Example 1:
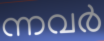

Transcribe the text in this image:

ന്നവർ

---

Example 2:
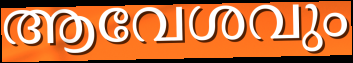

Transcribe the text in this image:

ആവേശവും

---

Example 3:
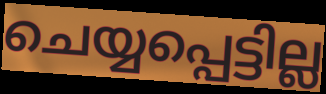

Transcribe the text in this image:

ചെയ്യപ്പെട്ടില്ല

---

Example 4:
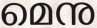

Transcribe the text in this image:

മെനു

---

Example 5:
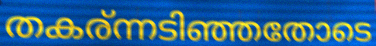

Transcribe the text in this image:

തകര്ന്നടിഞ്ഞതോടെ